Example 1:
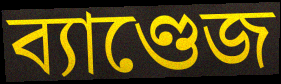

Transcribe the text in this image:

ব্যাণ্ডেজ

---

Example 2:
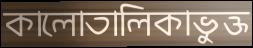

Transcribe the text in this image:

কালোতালিকাভুক্ত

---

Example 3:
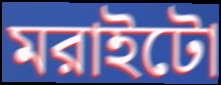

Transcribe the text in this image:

মরাইটো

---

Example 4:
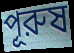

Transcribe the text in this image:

পূরুষ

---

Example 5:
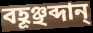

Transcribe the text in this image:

বহূঞ্ছব্দান্